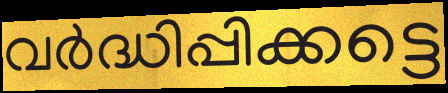
വർദ്ധിപ്പിക്കട്ടെ